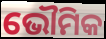
ଭୌମିକ